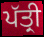
ਪੱਤ੍ਰੀ